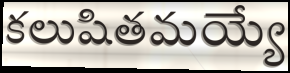
కలుషితమయ్యే